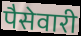
पैसेवारी